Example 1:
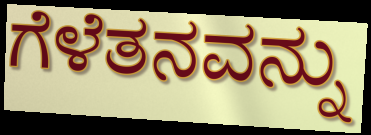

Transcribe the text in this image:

ಗೆಳೆತನವನ್ನು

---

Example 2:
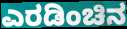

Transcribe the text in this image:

ಎರಡಿಂಚಿನ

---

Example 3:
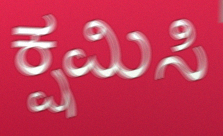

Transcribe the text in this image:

ಕ್ಷಮಿಸಿ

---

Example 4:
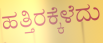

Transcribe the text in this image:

ಹತ್ತಿರಕ್ಕೆಳೆದು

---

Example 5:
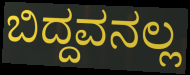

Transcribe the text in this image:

ಬಿದ್ದವನಲ್ಲ